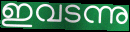
ഇവടന്നു